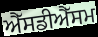
ਐੱਸਡੀਐੱਸਮ